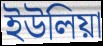
ইউলিয়া